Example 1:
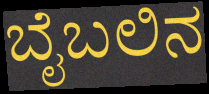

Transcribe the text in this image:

ಬೈಬಲಿನ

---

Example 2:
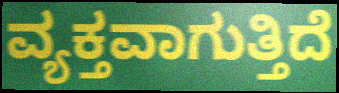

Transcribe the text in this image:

ವ್ಯಕ್ತವಾಗುತ್ತಿದೆ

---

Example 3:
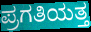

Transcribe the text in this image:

ಪ್ರಗತಿಯತ್ತ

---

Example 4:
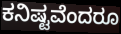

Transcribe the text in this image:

ಕನಿಷ್ಟವೆಂದರೂ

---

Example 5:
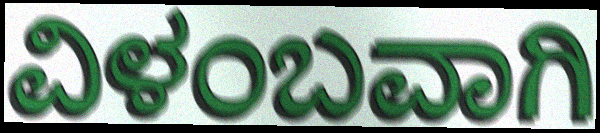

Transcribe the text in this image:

ವಿಳಂಬವಾಗಿ